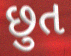
છુત